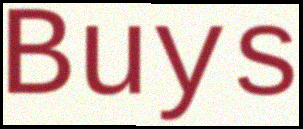
Buys